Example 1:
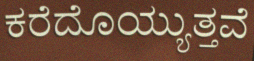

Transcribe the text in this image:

ಕರೆದೊಯ್ಯುತ್ತವೆ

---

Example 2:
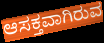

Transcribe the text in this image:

ಆಸಕ್ತವಾಗಿರುವ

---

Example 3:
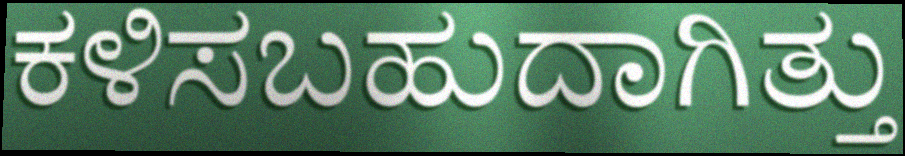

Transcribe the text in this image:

ಕಳಿಸಬಹುದಾಗಿತ್ತು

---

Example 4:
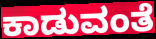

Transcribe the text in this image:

ಕಾಡುವಂತೆ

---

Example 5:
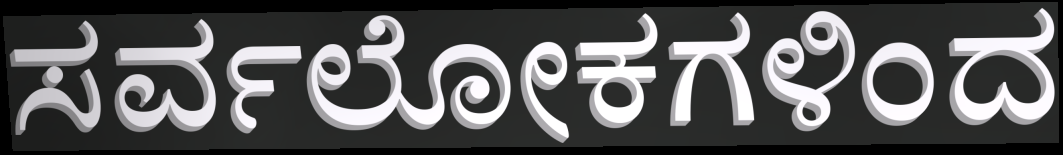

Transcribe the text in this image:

ಸರ್ವಲೋಕಗಳಿಂದ